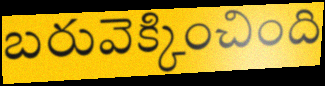
బరువెక్కించింది